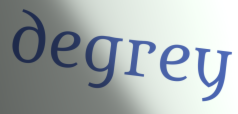
degrey